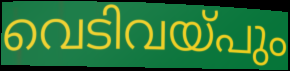
വെടിവയ്പും